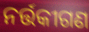
ନର୍ତ୍ତକୀଗଣ